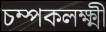
চম্পকলক্ষ্মী